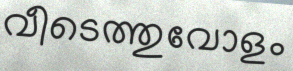
വീടെത്തുവോളം